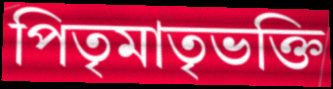
পিতৃমাতৃভক্তি